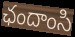
ఛందాంసి